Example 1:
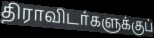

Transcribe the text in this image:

திராவிடர்களுக்குப்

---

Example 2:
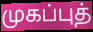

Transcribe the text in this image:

முகப்புத்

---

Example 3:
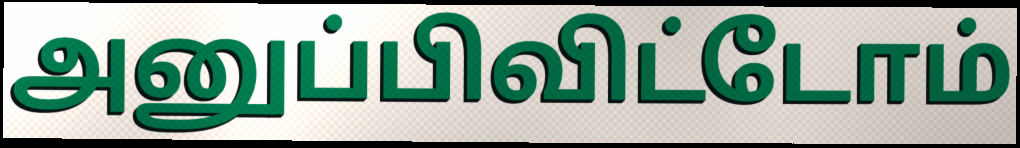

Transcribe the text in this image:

அனுப்பிவிட்டோம்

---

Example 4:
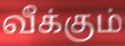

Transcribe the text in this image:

வீக்கும்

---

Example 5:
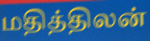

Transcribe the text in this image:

மதித்திலன்